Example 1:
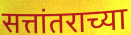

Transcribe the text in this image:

सत्तांतराच्या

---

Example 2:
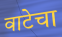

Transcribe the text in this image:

वाटेचा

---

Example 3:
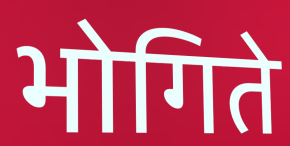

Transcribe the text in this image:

भोगिते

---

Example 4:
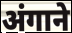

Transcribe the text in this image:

अंगाने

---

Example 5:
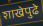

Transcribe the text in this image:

शाखेपुढे